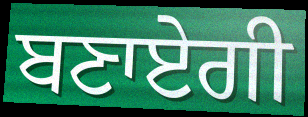
ਬਣਾਏਗੀ